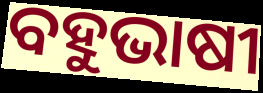
ବହୁଭାଷୀ